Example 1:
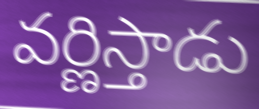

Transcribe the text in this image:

వర్ణిస్తాడు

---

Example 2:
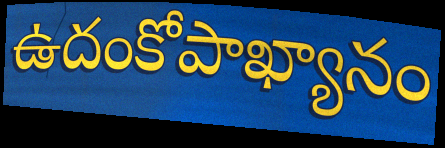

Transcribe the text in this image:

ఉదంకోపాఖ్యానం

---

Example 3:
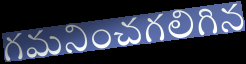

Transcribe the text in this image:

గమనించగలిగిన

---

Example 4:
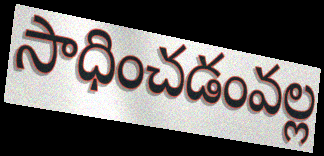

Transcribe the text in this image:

సాధించడంవల్ల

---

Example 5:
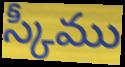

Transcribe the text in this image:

స్కీము